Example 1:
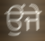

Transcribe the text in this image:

ਉਂਜੇ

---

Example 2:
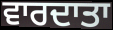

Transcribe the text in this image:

ਵਾਰਦਾਤਾ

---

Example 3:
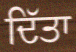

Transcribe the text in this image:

ਦਿੱਤਾ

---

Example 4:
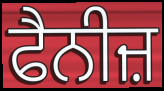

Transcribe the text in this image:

ਫੈਨੀਜ਼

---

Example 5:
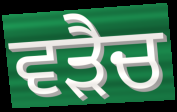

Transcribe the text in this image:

ਵੜੈਚ